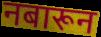
नबारून